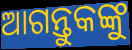
ଆଗନ୍ତୁକଙ୍କୁ